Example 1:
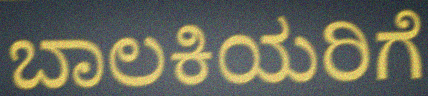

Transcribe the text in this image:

ಬಾಲಕಿಯರಿಗೆ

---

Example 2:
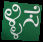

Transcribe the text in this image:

ಳ್ಳಿಸೆ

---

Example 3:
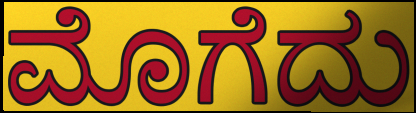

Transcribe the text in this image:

ಮೊಗೆದು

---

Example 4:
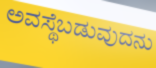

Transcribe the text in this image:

ಅವಸ್ಥೆಬಡುವುದನು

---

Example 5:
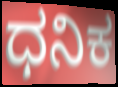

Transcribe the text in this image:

ಧನಿಕ